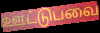
ஊட்டுபவை